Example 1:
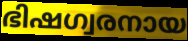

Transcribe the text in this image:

ഭിഷഗ്വരനായ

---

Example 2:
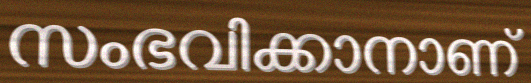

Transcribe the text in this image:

സംഭവിക്കാനാണ്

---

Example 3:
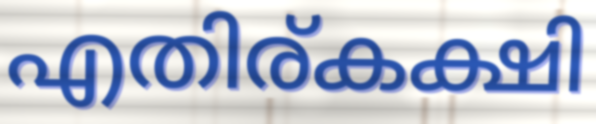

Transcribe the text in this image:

എതിര്കക്ഷി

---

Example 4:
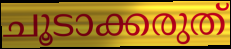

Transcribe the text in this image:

ചൂടാക്കരുത്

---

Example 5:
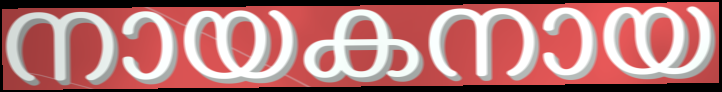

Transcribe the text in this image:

നായകനായ